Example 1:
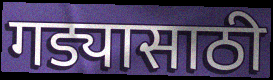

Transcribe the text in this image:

गड्यासाठी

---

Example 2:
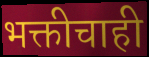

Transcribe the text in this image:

भक्तीचाही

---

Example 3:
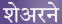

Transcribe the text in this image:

शेअरने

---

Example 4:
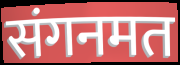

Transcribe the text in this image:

संगनमत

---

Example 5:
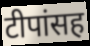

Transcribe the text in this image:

टीपांसह